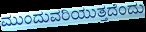
ಮುಂದುವರಿಯುತ್ತದೆಂದು